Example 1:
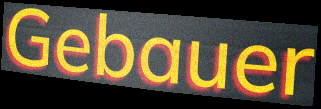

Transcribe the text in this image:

Gebauer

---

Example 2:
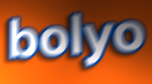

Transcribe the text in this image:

bolyo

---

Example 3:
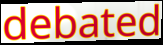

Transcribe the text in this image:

debated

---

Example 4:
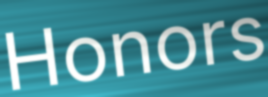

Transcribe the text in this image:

Honors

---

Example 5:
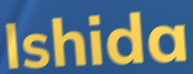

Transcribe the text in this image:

Ishida